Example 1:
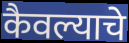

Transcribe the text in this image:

कैवल्याचे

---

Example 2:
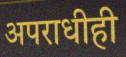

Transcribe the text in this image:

अपराधीही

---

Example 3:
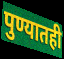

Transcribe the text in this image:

पुण्यातही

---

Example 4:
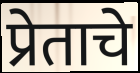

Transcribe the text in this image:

प्रेताचे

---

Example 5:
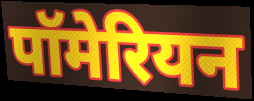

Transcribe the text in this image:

पॉमेरियन